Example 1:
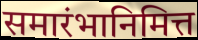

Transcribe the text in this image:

समारंभानिमित्त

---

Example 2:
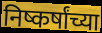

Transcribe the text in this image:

निष्कर्षांच्या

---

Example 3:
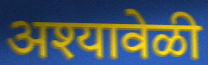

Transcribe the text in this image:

अश्यावेळी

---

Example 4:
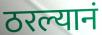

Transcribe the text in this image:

ठरल्यानं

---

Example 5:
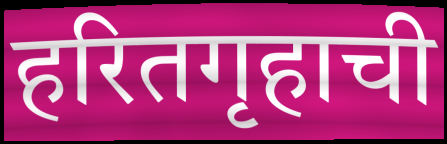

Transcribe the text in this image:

हरितगृहाची